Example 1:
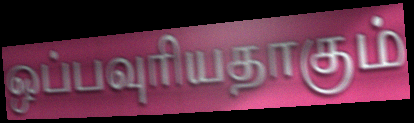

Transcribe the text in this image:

ஒப்பவுரியதாகும்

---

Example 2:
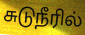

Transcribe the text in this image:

சுடுநீரில்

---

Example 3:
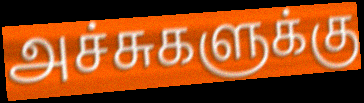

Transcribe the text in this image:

அச்சுகளுக்கு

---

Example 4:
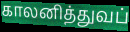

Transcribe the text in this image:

காலனித்துவப்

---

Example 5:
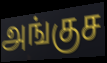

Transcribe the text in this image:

அங்குச